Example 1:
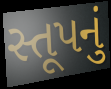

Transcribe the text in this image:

સ્તૂપનું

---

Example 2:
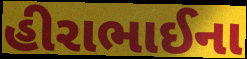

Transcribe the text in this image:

હીરાભાઈના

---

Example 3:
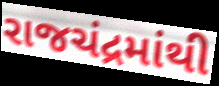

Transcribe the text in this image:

રાજચંદ્રમાંથી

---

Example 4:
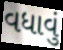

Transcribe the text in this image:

વધાવું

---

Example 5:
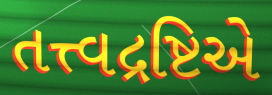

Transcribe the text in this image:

તત્ત્વદ્રષ્ટિએ